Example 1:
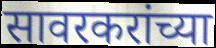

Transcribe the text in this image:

सावरकरांच्या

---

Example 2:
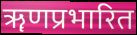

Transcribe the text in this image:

ॠणप्रभारित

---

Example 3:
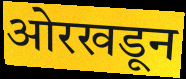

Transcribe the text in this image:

ओरखडून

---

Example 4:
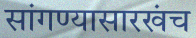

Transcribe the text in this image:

सांगण्यासारखंच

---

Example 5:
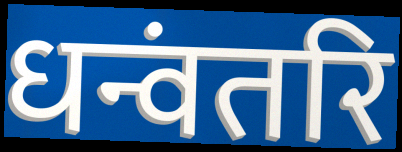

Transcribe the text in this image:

धन्वंतरि